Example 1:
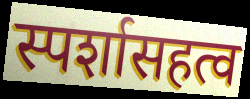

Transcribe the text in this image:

स्पर्शासहत्व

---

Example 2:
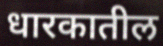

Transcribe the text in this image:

धारकातील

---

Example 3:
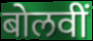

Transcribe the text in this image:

बोलवीं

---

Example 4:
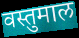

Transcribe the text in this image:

वस्तुमाल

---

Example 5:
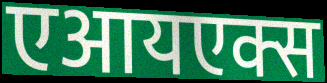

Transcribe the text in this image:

एआयएक्स